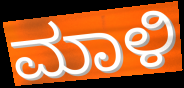
ಮಾಳಿ